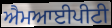
ਐਮਆਈਪੀਟੀ